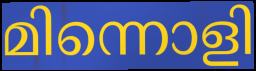
മിന്നൊളി